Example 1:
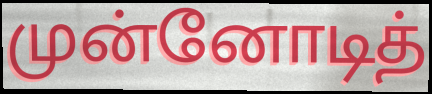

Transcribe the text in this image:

முன்னோடித்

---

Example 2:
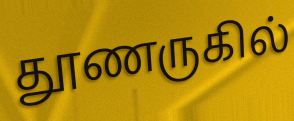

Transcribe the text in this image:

தூணருகில்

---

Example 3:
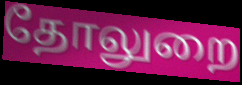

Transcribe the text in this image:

தோலுறை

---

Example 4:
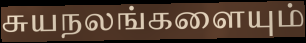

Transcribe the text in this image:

சுயநலங்களையும்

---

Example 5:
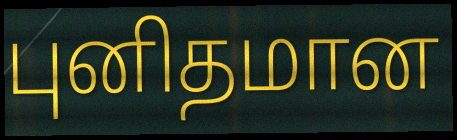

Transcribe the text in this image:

புனிதமான